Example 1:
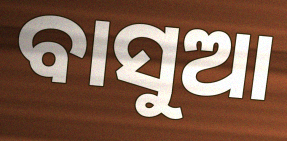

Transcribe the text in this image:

ବାସୁଆ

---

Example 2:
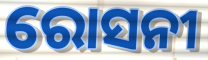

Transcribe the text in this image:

ରୋସନୀ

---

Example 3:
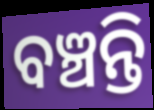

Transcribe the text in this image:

ବଞ୍ଚନ୍ତି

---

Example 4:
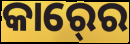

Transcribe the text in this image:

କାର୍‍ରେ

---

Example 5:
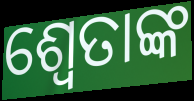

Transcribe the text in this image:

ଶ୍ଵେତାଙ୍କ